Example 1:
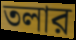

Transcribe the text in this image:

তলার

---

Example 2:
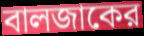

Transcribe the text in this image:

বালজাকের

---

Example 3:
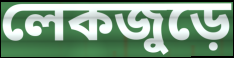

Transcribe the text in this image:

লেকজুড়ে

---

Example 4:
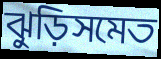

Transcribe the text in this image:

ঝুড়িসমেত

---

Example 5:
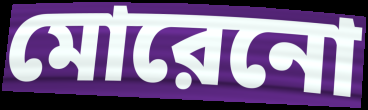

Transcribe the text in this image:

মোরেনো